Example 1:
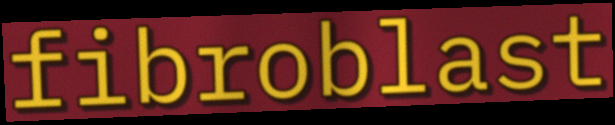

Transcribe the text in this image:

fibroblast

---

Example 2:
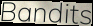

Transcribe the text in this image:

Bandits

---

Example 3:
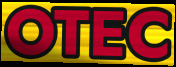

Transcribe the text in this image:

OTEC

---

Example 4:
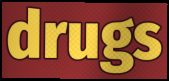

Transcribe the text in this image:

drugs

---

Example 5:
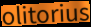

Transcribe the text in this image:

olitorius